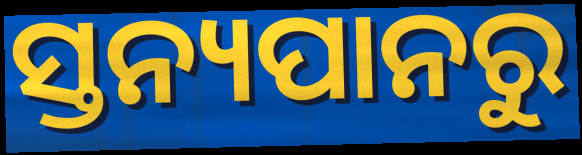
ସ୍ତନ୍ୟପାନରୁ